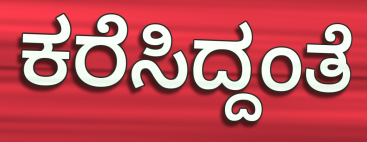
ಕರೆಸಿದ್ದಂತೆ